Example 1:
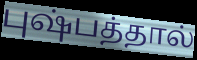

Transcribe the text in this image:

புஷ்பத்தால்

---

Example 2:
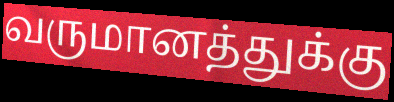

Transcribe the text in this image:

வருமானத்துக்கு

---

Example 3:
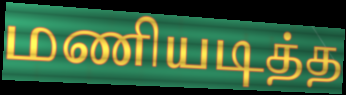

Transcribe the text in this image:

மணியடித்த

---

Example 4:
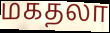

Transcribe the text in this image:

மகதலா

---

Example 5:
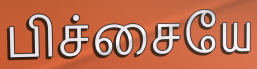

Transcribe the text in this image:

பிச்சையே